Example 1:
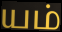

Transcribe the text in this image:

யம்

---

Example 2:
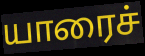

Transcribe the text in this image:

யாரைச்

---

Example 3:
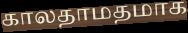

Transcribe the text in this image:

காலதாமதமாக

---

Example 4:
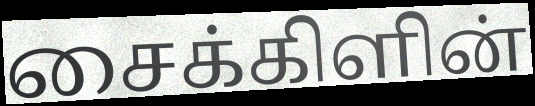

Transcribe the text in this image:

சைக்கிளின்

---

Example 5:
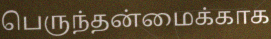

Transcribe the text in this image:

பெருந்தன்மைக்காக